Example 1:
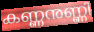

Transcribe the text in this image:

കണ്ണനുണ്ണി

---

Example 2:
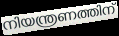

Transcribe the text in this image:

നിയന്ത്രണത്തിന്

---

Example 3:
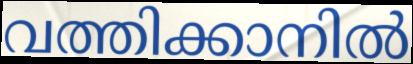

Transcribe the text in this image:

വത്തിക്കാനിൽ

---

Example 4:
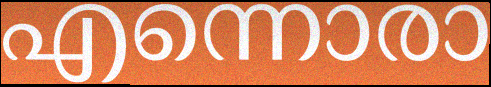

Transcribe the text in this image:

എന്നൊരാ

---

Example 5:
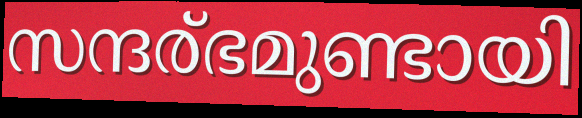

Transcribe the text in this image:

സന്ദര്ഭമുണ്ടായി